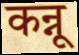
कन्नू